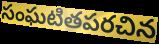
సంఘటితపరచిన